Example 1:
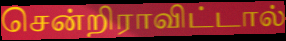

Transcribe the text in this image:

சென்றிராவிட்டால்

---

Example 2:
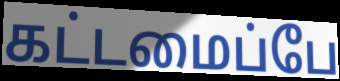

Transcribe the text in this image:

கட்டமைப்பே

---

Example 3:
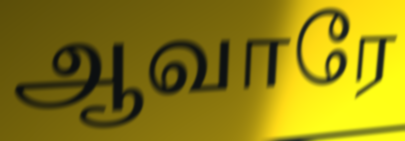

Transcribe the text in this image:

ஆவாரே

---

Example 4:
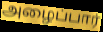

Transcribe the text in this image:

அழைப்பார்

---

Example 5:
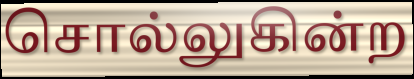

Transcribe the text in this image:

சொல்லுகின்ற